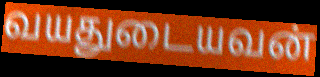
வயதுடையவன்